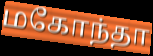
மகோந்தா